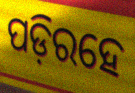
ପଡ଼ିରହେ